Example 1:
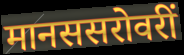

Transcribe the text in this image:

मानससरोवरीं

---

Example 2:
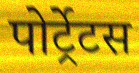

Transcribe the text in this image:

पोर्ट्रेटस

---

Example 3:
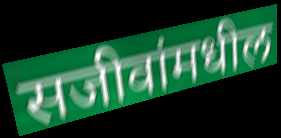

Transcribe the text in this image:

सजीवांमधील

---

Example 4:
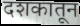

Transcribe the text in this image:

दशकातून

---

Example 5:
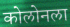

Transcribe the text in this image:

कोलोनला